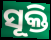
ସୂକ୍ତି